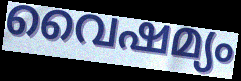
വൈഷമ്യം